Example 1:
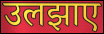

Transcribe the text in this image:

उलझाए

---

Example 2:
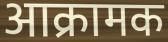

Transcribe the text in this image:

आक्रामक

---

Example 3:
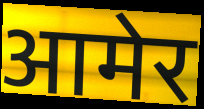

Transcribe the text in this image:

आमेर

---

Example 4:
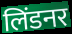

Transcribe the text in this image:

लिंडनर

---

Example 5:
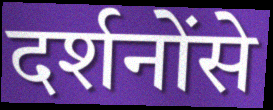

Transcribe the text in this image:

दर्शनोंसे